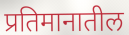
प्रतिमानातील